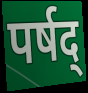
पर्षद्